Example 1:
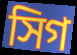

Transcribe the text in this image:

সিগ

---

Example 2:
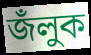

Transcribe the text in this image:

জঁলুক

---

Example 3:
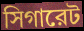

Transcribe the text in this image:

সিগারেট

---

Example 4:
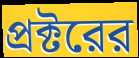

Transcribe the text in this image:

প্রক্টরের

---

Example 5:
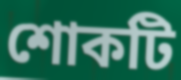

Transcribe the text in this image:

শোকটি